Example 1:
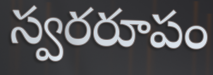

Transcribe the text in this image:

స్వరరూపం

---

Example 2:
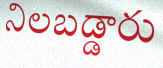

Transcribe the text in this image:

నిలబడ్డారు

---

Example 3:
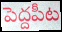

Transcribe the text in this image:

పెద్దపీట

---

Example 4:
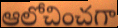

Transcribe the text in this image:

ఆలోచించగా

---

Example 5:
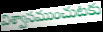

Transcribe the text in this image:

విశ్వాసముంచుటకు